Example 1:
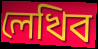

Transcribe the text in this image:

লেখিব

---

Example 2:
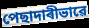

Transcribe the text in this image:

পেছাদাৰীভাৱে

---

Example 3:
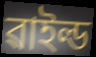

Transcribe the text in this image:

ৱাইল্ড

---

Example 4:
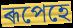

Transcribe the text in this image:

ৰূপেহে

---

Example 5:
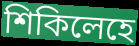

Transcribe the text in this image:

শিকিলেহে